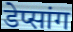
डेप्सांग